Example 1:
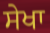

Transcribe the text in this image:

ਸੇਖਾ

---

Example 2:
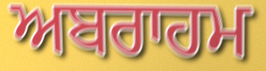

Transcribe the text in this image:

ਅਬਰਾਹਮ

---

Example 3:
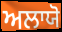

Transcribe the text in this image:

ਅਲਾਯੋ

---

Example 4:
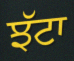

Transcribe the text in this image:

ਝੱਟਾ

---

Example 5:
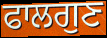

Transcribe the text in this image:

ਫਾਲਗੁਣ